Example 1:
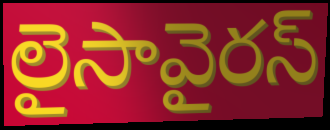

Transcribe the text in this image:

లైసావైరస్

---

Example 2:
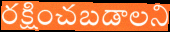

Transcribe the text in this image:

రక్షించబడాలని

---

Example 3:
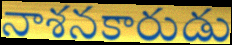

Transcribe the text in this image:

నాశనకారుడు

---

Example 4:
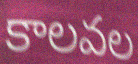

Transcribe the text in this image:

కాలవల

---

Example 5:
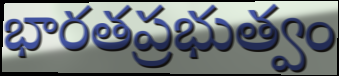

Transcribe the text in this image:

భారతప్రభుత్వం